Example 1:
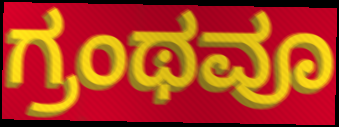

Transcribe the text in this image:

ಗ್ರಂಥವೂ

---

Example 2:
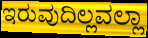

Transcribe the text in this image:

ಇರುವುದಿಲ್ಲವಲ್ಲಾ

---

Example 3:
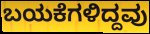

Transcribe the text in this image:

ಬಯಕೆಗಳಿದ್ದವು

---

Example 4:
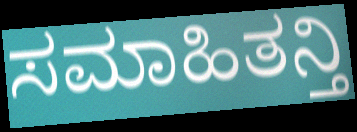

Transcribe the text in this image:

ಸಮಾಹಿತನ್ತಿ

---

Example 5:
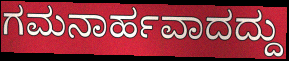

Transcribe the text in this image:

ಗಮನಾರ್ಹವಾದದ್ದು